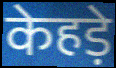
केहड़े